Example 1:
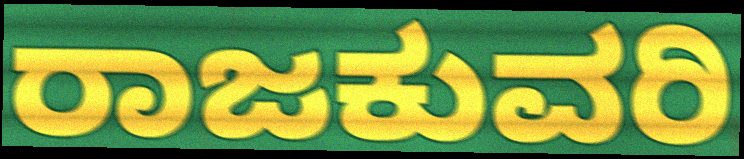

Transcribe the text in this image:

ರಾಜಕುವರಿ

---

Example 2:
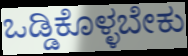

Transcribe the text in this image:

ಒಡ್ಡಿಕೊಳ್ಳಬೇಕು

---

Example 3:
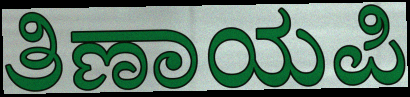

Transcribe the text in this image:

ತಿಣಾಯಪಿ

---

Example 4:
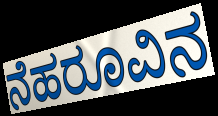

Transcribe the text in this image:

ನೆಹರೂವಿನ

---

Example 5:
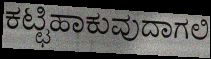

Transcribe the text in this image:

ಕಟ್ಟಿಹಾಕುವುದಾಗಲಿ